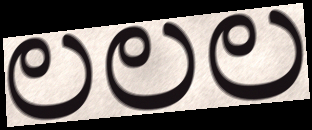
ಲಲಲ